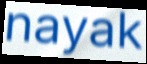
nayak